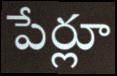
పేర్లూ